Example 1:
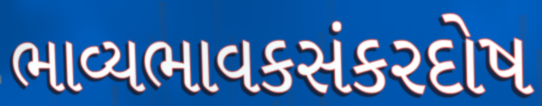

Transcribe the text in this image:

ભાવ્યભાવકસંકરદોષ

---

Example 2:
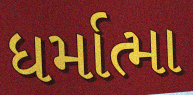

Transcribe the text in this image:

ધર્માત્મા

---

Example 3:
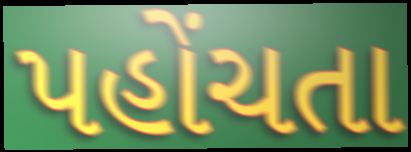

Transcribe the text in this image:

પહોંચતા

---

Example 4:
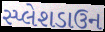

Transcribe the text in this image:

સ્પ્લેશડાઉન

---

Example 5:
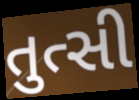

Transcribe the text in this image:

તુત્સી